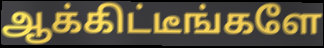
ஆக்கிட்டீங்களே